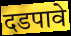
दडपावे